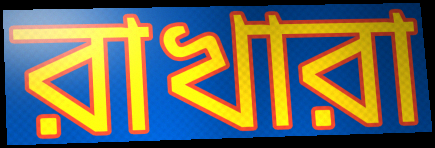
রাখারা